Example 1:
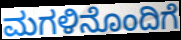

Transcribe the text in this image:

ಮಗಳಿನೊಂದಿಗೆ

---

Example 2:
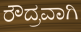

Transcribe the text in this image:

ರೌದ್ರವಾಗಿ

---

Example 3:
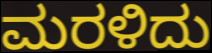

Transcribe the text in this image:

ಮರಳಿದು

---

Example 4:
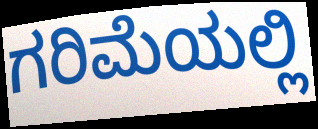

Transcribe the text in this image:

ಗರಿಮೆಯಲ್ಲಿ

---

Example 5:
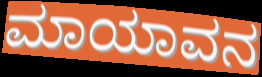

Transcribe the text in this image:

ಮಾಯಾವನ